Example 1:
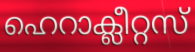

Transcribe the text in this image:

ഹെറാക്ലീറ്റസ്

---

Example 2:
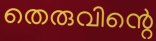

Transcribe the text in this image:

തെരുവിന്റെ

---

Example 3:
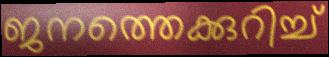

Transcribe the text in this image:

ജനത്തെക്കുറിച്ച്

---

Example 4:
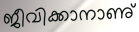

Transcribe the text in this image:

ജീവിക്കാനാണു്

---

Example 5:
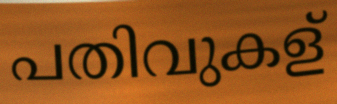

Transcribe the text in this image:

പതിവുകള്